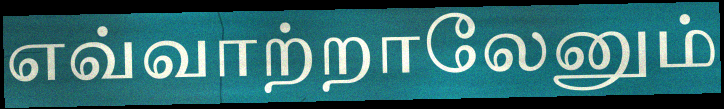
எவ்வாற்றாலேனும்